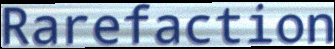
Rarefaction